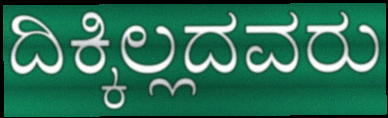
ದಿಕ್ಕಿಲ್ಲದವರು